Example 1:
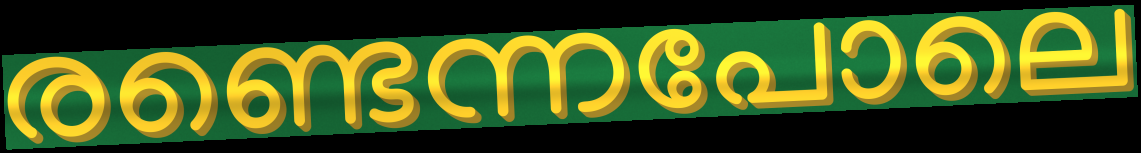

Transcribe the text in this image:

രണ്ടെന്നപോലെ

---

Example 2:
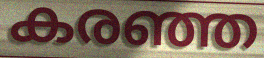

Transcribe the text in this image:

കരഞ്ഞ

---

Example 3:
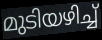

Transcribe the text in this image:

മുടിയഴിച്ച്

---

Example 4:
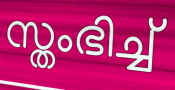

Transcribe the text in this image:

സ്തംഭിച്ച്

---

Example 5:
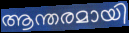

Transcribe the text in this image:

ആന്തരമായി